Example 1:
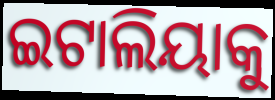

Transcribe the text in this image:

ଇଟାଲିୟାକୁ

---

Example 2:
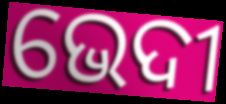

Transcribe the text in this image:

ଭେଦୀ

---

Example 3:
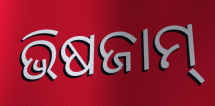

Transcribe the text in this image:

ଭିଷଜାମ୍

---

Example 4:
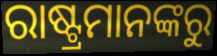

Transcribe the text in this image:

ରାଷ୍ଟ୍ରମାନଙ୍କରୁ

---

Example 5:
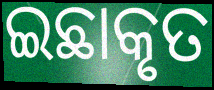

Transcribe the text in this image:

ଇଛାକୃତ